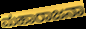
ಮಹಾರಾಜನಾ